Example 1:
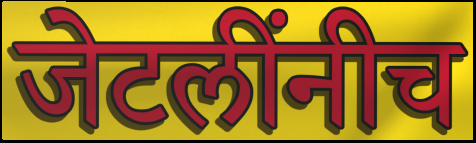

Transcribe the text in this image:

जेटलींनीच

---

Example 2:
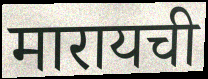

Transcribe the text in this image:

मारायची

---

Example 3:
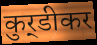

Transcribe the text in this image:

कुर्डीकर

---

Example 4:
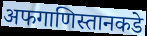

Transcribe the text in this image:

अफगाणिस्तानकडे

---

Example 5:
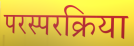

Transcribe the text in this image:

परस्परक्रिया